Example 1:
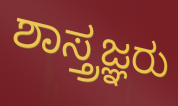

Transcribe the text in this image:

ಶಾಸ್ತ್ರಜ್ಞರು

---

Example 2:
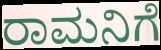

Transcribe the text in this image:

ರಾಮನಿಗೆ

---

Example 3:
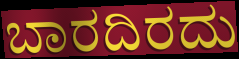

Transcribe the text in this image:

ಬಾರದಿರದು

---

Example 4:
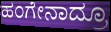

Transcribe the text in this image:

ಹಂಗೇನಾದ್ರೂ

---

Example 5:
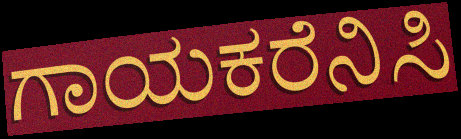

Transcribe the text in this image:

ಗಾಯಕರೆನಿಸಿ